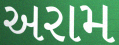
અરામ